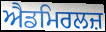
ਐਡਮਿਰਲਜ਼